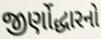
જીર્ણોદ્ધારનો